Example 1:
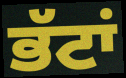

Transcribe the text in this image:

ਭੱਟਾਂ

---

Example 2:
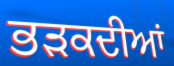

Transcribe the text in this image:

ਭੜਕਦੀਆਂ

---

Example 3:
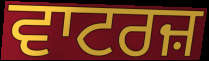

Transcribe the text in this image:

ਵਾਟਰਜ਼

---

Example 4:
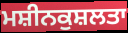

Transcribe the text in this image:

ਮਸ਼ੀਨਕੁਸ਼ਲਤਾ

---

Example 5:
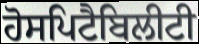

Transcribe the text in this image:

ਹੋਸਪਿਟੈਬਿਲੀਟੀ